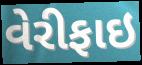
વેરીફાઇ